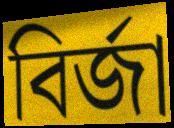
বির্জা